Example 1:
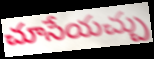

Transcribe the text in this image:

చూసేయచ్చు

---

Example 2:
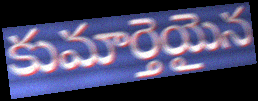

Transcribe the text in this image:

కుమార్తెయైన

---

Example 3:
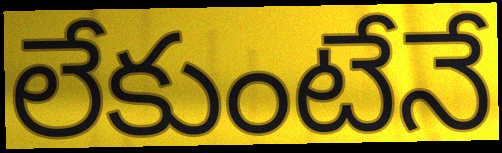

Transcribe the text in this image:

లేకుంటేనే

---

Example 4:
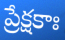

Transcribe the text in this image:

ప్రేక్షకాః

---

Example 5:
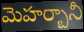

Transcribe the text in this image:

మెహర్బానీ